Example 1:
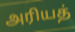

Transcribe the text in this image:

அரியத்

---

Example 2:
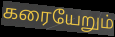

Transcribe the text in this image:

கரையேறும்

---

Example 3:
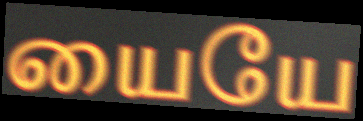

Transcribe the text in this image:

யையே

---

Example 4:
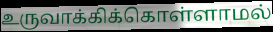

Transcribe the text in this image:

உருவாக்கிக்கொள்ளாமல்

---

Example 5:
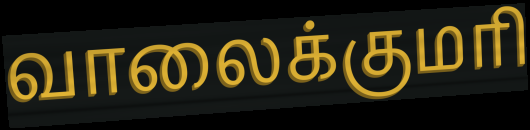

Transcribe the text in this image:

வாலைக்குமரி